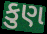
કુણ